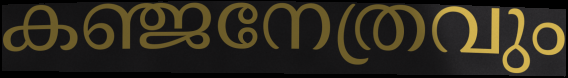
കഞ്ജനേത്രവും